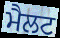
ਮੈਲਟ